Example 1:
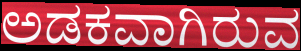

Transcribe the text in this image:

ಅಡಕವಾಗಿರುವ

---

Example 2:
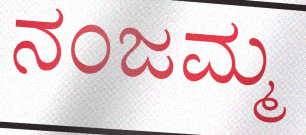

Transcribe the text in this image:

ನಂಜಮ್ಮ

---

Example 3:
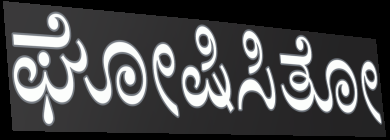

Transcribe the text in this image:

ಘೋಷಿಸಿತೋ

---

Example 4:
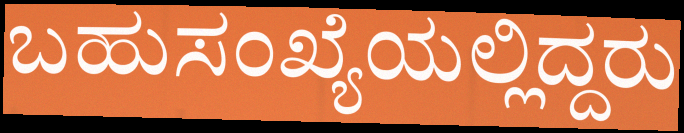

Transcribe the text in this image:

ಬಹುಸಂಖ್ಯೆಯಲ್ಲಿದ್ದರು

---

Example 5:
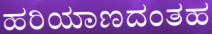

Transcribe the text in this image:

ಹರಿಯಾಣದಂತಹ